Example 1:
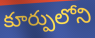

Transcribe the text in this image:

కూర్పులోని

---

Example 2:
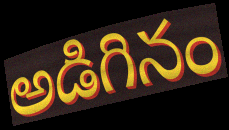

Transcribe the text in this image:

అడిగినం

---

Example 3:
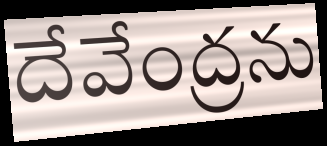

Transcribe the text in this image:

దేవేంద్రను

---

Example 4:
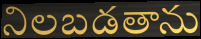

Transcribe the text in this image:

నిలబడతాను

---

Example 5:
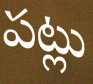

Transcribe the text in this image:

పట్లు